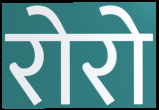
रोरो